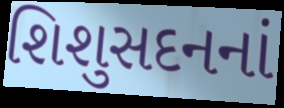
શિશુસદનનાં